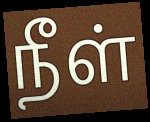
நீள்